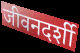
जीवनदर्शी